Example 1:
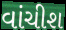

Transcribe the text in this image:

વાંચીશ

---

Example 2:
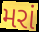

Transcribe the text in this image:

મરાં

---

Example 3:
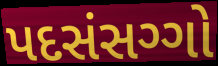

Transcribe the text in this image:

પદસંસગ્ગો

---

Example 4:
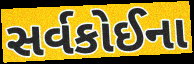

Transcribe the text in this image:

સર્વકોઈના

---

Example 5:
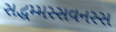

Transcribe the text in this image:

સદ્ધમ્મસ્સવનસ્સ